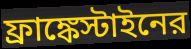
ফ্রাঙ্কেস্টাইনের